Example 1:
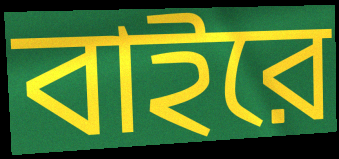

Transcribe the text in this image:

বাইরে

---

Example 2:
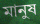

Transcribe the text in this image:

মানুষ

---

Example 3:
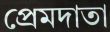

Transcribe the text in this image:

প্রেমদাতা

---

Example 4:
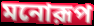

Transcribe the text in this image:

মনোরূপ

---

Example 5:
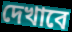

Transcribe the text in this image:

দেখাবে